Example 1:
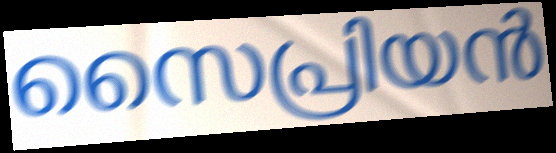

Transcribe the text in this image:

സൈപ്രിയൻ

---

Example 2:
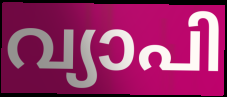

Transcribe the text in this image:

വ്യാപി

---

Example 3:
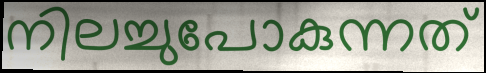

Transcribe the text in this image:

നിലച്ചുപോകുന്നത്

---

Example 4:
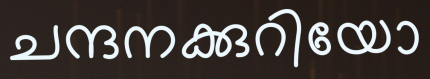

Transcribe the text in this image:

ചന്ദനക്കുറിയോ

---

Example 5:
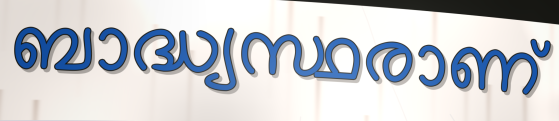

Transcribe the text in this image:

ബാദ്ധ്യസ്ഥരാണ്